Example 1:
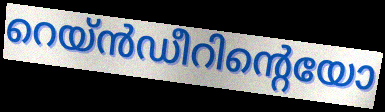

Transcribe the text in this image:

റെയ്ൻഡീറിന്റെയോ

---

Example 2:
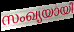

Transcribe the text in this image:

സംഖ്യയായി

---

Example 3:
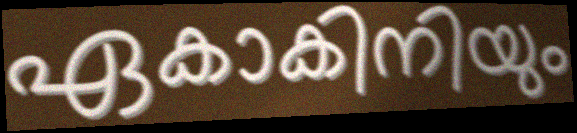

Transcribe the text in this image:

ഏകാകിനിയും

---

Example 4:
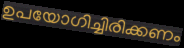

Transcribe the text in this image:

ഉപയോഗിച്ചിരിക്കണം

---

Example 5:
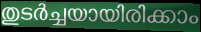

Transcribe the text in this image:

തുടർച്ചയായിരിക്കാം